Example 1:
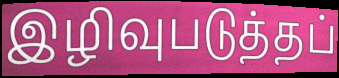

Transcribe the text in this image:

இழிவுபடுத்தப்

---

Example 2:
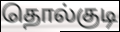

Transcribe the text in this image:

தொல்குடி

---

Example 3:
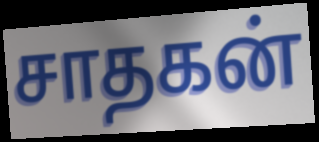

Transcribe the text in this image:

சாதகன்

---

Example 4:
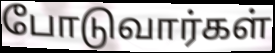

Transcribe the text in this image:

போடுவார்கள்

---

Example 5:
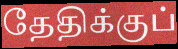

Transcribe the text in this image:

தேதிக்குப்